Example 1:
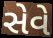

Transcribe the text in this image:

સેવે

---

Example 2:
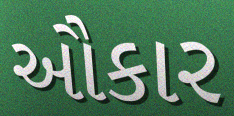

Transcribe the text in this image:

ઔકાર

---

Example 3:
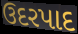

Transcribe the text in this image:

ઉદરપાદ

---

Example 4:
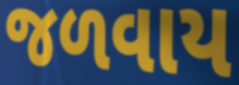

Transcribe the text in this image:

જળવાય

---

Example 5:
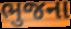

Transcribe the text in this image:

ભુજના